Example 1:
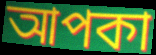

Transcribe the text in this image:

আপকা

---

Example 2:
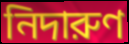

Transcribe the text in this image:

নিদারুণ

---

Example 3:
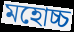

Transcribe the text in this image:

মহোচ্চ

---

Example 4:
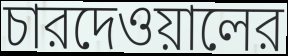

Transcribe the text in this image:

চারদেওয়ালের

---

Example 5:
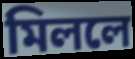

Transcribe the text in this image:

মিললে